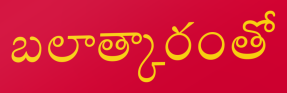
బలాత్కారంతో